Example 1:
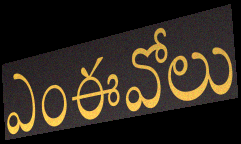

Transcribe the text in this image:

ఎంఈవోలు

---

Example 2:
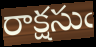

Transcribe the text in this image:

రాక్షసుఁ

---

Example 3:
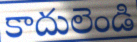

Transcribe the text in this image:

కాదులెండి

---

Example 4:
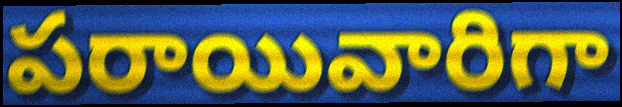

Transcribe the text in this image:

పరాయివారిగా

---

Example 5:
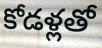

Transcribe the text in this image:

కోడళ్లతో